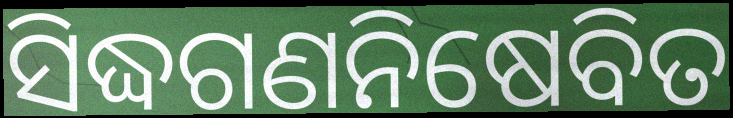
ସିଦ୍ଧଗଣନିଷେବିତ